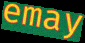
emay